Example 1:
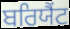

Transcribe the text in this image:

ਬਰਿਯੈਂਟ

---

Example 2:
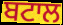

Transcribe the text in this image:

ਬਟਾਲ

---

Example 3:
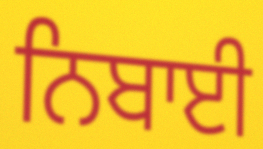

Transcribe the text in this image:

ਨਿਬਾਈ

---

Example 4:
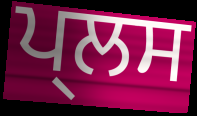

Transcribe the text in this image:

ਪ੍ਲਸ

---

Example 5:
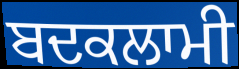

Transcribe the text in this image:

ਬਦਕਲਾਮੀ